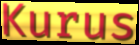
Kurus